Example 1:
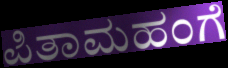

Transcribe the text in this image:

ಪಿತಾಮಹಂಗೆ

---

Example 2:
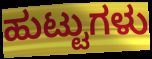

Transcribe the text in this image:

ಹುಟ್ಟುಗಳು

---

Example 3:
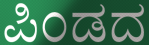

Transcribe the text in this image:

ಪಿಂಡದ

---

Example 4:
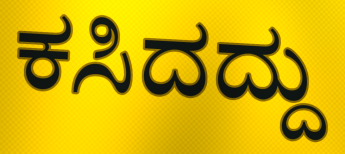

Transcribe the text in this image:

ಕಸಿದದ್ದು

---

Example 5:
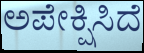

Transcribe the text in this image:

ಅಪೇಕ್ಷಿಸಿದೆ